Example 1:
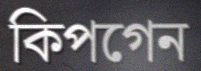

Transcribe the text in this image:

কিপগেন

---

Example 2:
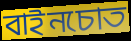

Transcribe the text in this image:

বাইনচোত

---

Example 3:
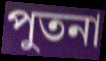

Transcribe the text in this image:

পুতনা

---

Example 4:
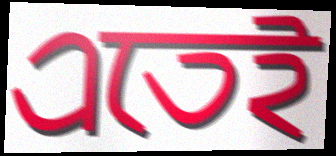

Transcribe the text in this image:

এতেই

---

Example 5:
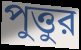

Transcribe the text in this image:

পুত্তুর